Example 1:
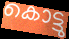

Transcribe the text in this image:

കൊട്ടു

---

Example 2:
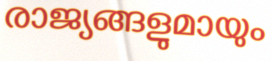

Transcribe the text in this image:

രാജ്യങ്ങളുമായും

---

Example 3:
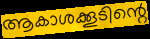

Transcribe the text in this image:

ആകാശക്കൂടിന്റെ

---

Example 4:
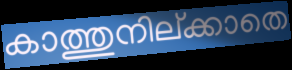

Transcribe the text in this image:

കാത്തുനില്ക്കാതെ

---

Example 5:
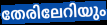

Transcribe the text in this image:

തേരിലേറിയും